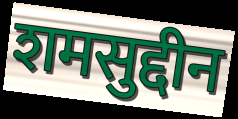
शमसुद्दीन